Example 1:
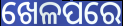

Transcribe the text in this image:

ଖେଳପରେ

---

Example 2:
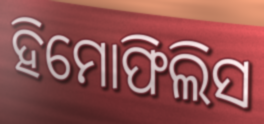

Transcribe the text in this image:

ହିମୋଫିଲିସ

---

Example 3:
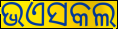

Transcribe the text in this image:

ଭଏସକଲ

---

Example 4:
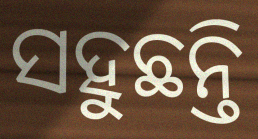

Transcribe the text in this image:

ସହୁଛନ୍ତି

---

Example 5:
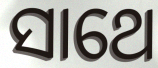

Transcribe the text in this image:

ସାଥେ